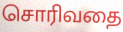
சொரிவதை